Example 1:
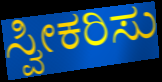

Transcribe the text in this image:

ಸ್ವೀಕರಿಸು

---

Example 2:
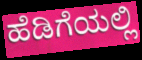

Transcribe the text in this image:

ಹೆಡಿಗೆಯಲ್ಲಿ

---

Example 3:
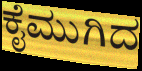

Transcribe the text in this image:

ಕೈಮುಗಿದ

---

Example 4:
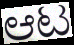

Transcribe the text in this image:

ಆಟ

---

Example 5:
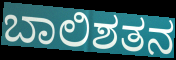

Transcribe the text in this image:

ಬಾಲಿಶತನ